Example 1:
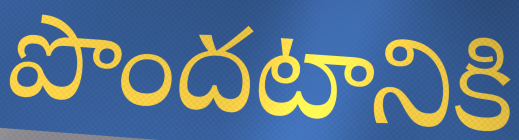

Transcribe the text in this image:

పొందటానికి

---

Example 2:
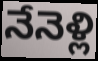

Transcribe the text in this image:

నేనెళ్లి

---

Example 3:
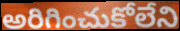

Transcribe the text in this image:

అరిగించుకోలేని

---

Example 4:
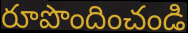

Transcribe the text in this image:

రూపొందించండి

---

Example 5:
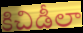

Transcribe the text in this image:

కిచిడీలా